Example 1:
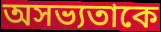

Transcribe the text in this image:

অসভ্যতাকে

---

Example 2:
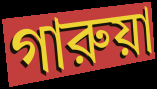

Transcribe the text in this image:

গারুয়া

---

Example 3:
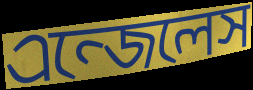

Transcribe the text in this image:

এন্জেলেস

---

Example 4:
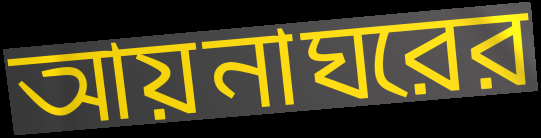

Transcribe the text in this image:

আয়নাঘরের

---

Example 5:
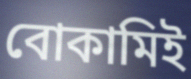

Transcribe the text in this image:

বোকামিই